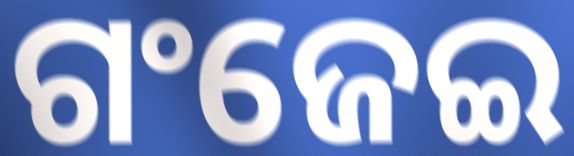
ଗଂଜେଇ